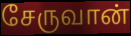
சேருவான்